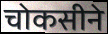
चोकसीने